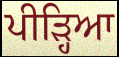
ਪੀੜ੍ਹਿਆ